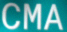
CMA